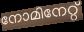
നോമിനേറ്റ്